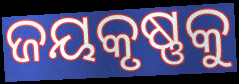
ଜୟକୃଷ୍ଣକୁ